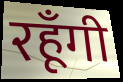
रहूँगी